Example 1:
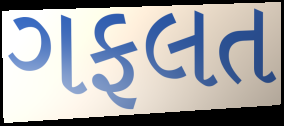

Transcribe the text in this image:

ગફલત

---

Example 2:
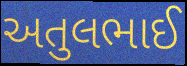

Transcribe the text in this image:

અતુલભાઈ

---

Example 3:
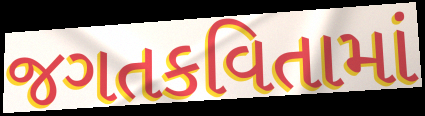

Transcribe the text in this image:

જગતકવિતામાં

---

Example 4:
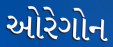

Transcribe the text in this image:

ઓરેગોન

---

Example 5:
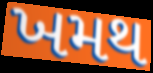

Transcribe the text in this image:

ખમથ